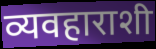
व्यवहाराशी